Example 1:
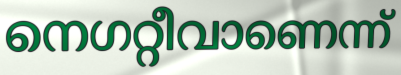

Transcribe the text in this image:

നെഗറ്റീവാണെന്ന്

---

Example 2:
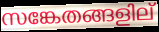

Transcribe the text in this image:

സങ്കേതങ്ങളില്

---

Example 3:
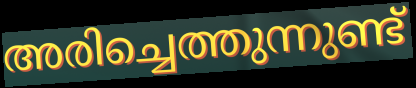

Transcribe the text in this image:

അരിച്ചെത്തുന്നുണ്ട്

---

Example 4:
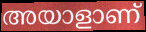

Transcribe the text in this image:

അയാളാണ്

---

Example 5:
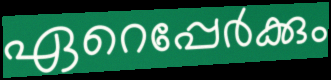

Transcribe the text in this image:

ഏറെപ്പേർക്കും